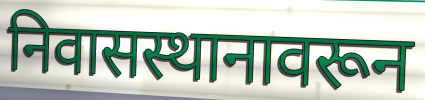
निवासस्थानावरून